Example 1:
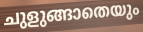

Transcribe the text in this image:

ചുളുങ്ങാതെയും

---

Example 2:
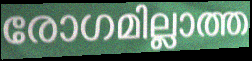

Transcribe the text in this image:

രോഗമില്ലാത്ത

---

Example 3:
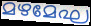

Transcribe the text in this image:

മഴമേഘ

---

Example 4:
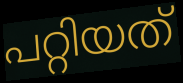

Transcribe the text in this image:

പറ്റിയത്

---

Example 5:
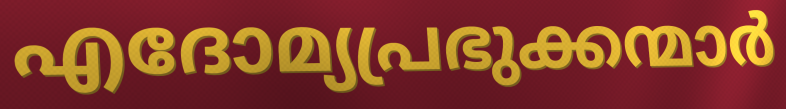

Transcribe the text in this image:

എദോമ്യപ്രഭുക്കന്മാർ